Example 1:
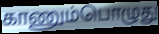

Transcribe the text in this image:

காணும்பொழுது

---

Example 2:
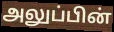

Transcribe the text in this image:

அலுப்பின்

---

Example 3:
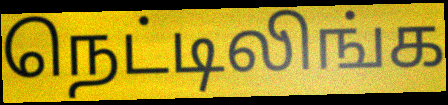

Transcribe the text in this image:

நெட்டிலிங்க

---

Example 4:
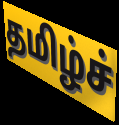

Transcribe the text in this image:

தமிழ்ச்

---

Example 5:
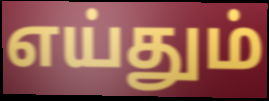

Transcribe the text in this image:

எய்தும்